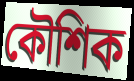
কৌশিক